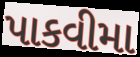
પાકવીમા